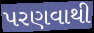
પરણવાથી